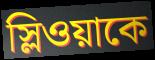
স্লিওয়াকে